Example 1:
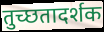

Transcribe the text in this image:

तुच्छतादर्शक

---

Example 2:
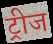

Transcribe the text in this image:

ट्रीज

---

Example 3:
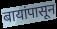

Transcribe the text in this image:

बायांपासून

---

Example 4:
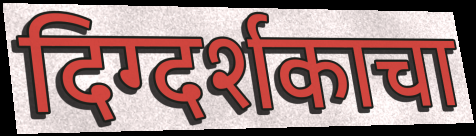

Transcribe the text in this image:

दिग्दर्शकाचा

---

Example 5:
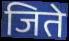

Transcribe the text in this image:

जिते